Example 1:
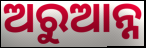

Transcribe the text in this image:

ଅରୁଆନ୍ନ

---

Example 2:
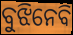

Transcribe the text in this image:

ବୁଝିନେବି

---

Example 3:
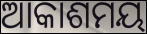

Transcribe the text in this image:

ଆକାଶମୟ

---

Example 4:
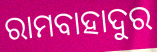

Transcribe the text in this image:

ରାମବାହାଦୁର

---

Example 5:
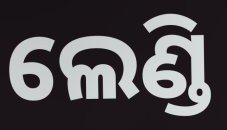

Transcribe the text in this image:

ଲେଣ୍ଡି